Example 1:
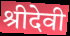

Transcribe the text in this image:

श्रीदेवी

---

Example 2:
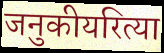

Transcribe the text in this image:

जनुकीयरित्या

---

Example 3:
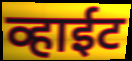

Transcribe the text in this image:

व्हाईट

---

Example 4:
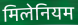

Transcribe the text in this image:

मिलेनियम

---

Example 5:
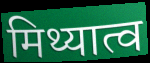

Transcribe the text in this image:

मिथ्यात्व